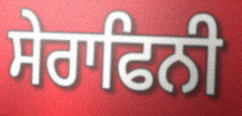
ਸੇਰਾਫਿਨੀ